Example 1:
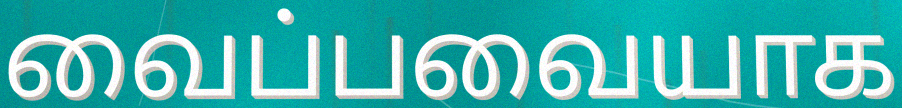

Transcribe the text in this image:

வைப்பவையாக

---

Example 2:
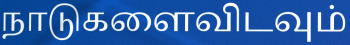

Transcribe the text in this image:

நாடுகளைவிடவும்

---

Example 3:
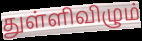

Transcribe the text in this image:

துள்ளிவிழும்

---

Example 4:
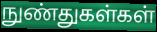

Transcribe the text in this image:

நுண்துகள்கள்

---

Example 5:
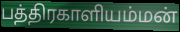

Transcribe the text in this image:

பத்திரகாளியம்மன்